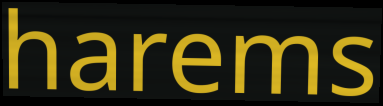
harems